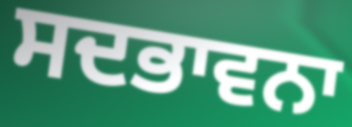
ਸਦਭਾਵਨਾ